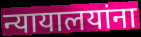
न्यायालयांना